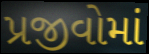
પ્રજીવોમાં